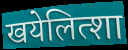
खयेलित्शा